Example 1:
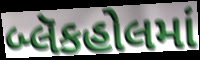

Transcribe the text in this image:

બ્લૅકહોલમાં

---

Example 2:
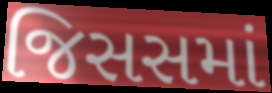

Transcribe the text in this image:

જિસસમાં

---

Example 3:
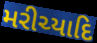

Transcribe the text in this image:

મરીચ્યાદિ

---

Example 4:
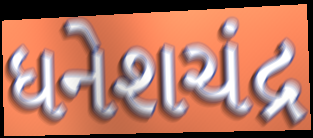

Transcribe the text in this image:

ધનેશચંદ્ર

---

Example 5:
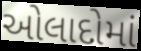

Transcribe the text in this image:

ઓલાદોમાં